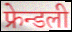
फ्रेन्डली